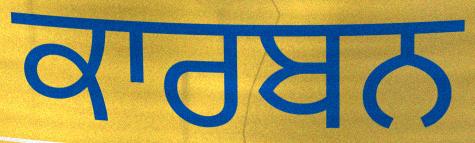
ਕਾਰਬਨ